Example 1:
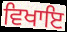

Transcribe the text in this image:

ਵਿਖਾਇ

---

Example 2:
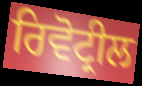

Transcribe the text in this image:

ਰਿਵੋਟ੍ਰੀਲ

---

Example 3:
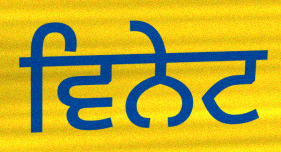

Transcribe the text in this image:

ਵਿਨੇਟ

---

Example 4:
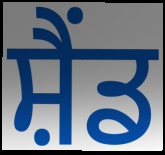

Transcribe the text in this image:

ਸ਼ੈਂਡ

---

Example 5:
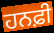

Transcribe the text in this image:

ਹਨਫ਼ੀ